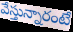
వేస్తున్నారంటే